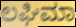
ಲಘಿಮಾ